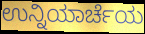
ಉನ್ನಿಯಾರ್ಚೆಯ